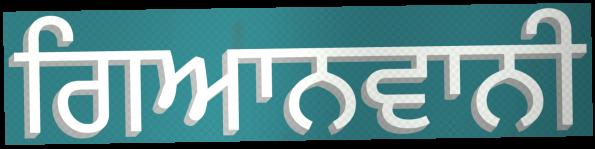
ਗਿਆਨਵਾਨੀ